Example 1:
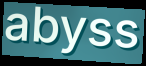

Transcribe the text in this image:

abyss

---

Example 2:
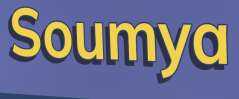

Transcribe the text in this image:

Soumya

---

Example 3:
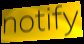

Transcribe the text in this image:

notify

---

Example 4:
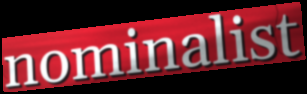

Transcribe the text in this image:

nominalist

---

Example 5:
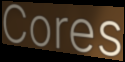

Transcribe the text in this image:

Cores